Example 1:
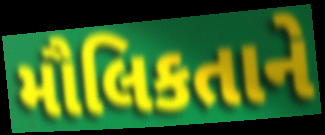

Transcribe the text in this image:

મૌલિકતાને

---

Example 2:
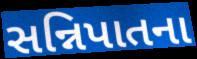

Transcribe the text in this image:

સન્નિપાતના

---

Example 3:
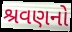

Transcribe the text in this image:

શ્રવણનો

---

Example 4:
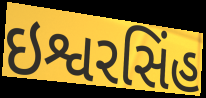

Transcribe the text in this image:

ઇશ્વરસિંહ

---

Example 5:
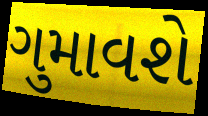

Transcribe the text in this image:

ગુમાવશે